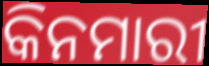
କିନମାରୀ